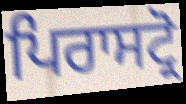
ਪਿਰਾਸਟ੍ਰੋ